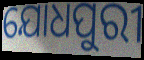
ଯୋଧପୁରୀ